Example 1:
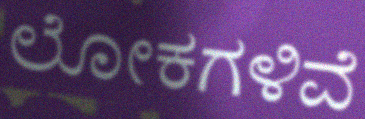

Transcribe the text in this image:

ಲೋಕಗಳಿವೆ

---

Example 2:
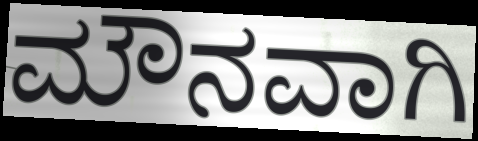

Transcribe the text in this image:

ಮೌನವಾಗಿ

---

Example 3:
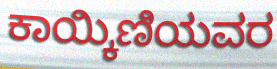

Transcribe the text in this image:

ಕಾಯ್ಕಿಣಿಯವರ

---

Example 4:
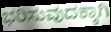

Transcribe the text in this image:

ಭರಿಸುವುದಕ್ಕಾಗಿ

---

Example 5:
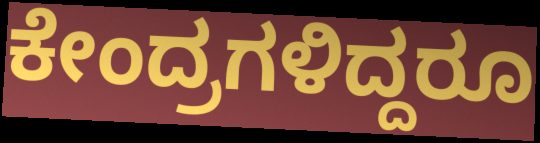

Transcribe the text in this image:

ಕೇಂದ್ರಗಳಿದ್ದರೂ